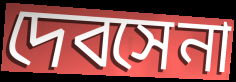
দেবসেনা